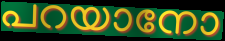
പറയാനോ